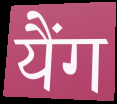
यैंग